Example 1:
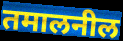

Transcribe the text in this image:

तमालनील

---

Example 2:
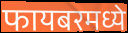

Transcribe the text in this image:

फायबरमध्ये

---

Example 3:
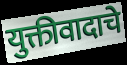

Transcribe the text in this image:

युक्तीवादाचे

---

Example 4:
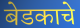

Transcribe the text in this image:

बेडकाचे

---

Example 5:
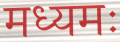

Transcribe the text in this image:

मध्यमः